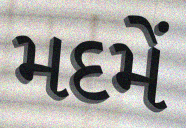
મદમેં